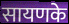
सायणके